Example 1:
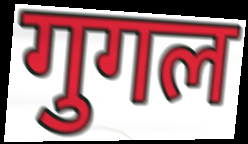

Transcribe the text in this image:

गुगल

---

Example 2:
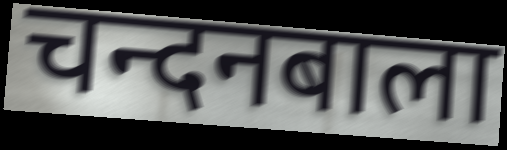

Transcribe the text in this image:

चन्दनबाला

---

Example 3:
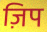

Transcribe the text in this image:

ज़िप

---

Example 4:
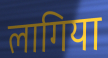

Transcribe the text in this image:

लागिया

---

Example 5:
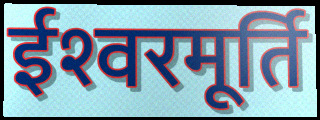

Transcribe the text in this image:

ईश्वरमूर्ति